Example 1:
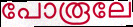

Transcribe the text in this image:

പോരൂലേ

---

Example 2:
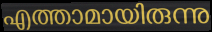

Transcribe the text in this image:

എത്താമായിരുന്നു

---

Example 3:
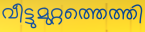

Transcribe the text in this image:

വീട്ടുമുറ്റത്തെത്തി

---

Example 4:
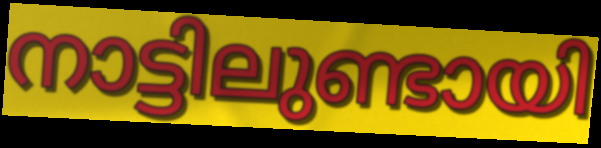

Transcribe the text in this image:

നാട്ടിലുണ്ടായി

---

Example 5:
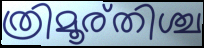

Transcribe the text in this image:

ത്രിമൂര്തിശ്ച